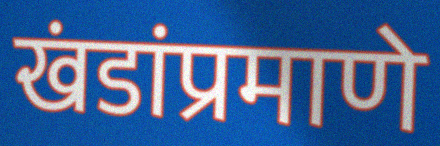
खंडांप्रमाणे